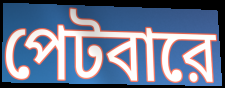
পেটবারে